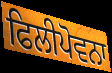
ਫਿਲੀਪੋਵਨਾ